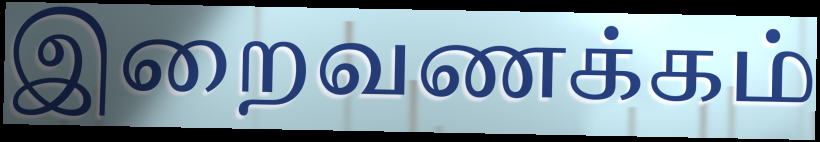
இறைவணக்கம்